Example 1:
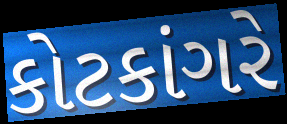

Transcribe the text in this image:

કોટકાંગરે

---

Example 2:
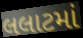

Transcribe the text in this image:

લલાટમાં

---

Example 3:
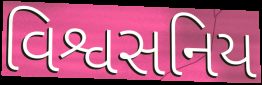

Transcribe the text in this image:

વિશ્વસનિય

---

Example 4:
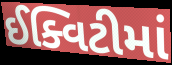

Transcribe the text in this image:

ઈક્વિટીમાં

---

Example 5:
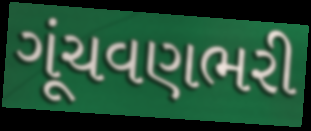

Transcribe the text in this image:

ગૂંચવણભરી